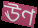
ঊণ